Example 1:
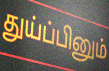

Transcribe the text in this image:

துய்ப்பினும்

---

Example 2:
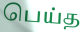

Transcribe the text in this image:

பெய்த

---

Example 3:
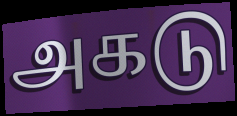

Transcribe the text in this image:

அகடு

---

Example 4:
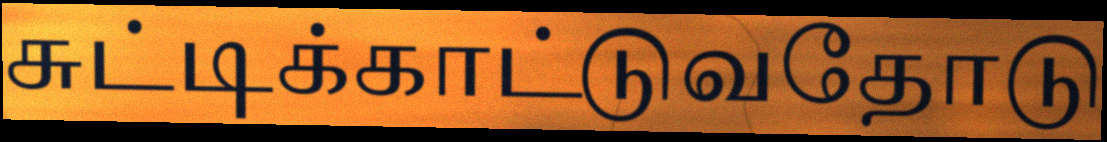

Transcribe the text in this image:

சுட்டிக்காட்டுவதோடு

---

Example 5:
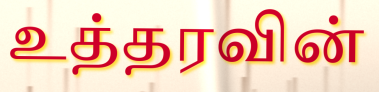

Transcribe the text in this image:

உத்தரவின்